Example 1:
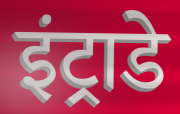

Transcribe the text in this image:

इंट्राडे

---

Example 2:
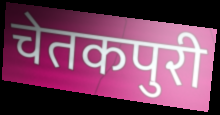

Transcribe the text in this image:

चेतकपुरी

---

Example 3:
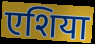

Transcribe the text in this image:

एशिया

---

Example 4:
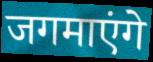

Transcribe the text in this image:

जगमाएंगे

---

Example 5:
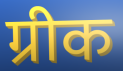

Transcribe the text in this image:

ग्रीक